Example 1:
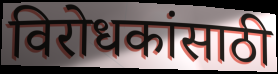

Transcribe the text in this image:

विरोधकांसाठी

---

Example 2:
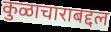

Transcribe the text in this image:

कुळाचाराबद्दल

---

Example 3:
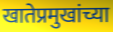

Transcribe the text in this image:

खातेप्रमुखांच्या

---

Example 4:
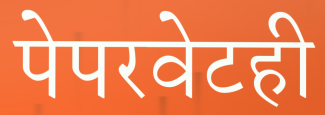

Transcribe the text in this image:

पेपरवेटही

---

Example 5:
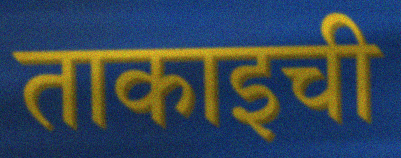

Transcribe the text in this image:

ताकाइची